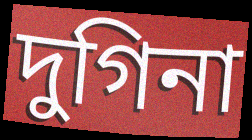
দুগিনা